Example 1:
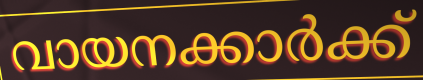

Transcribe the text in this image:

വായനക്കാർക്ക്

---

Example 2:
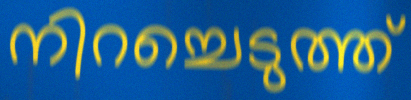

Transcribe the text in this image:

നിറച്ചെടുത്ത്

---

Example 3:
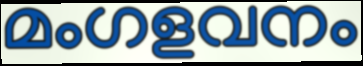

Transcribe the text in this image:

മംഗളവനം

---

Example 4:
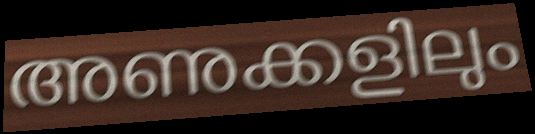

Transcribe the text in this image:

അണുക്കളിലും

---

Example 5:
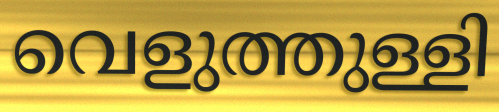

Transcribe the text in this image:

വെളുത്തുള്ളി